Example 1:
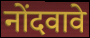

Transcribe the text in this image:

नोंदवावे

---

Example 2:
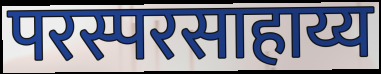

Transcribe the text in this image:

परस्परसाहाय्य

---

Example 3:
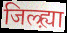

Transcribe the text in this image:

जिल्ह्य़ा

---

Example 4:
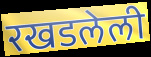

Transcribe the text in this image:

रखडलेली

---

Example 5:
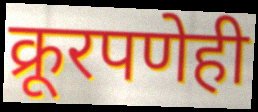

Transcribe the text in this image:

क्रूरपणेही